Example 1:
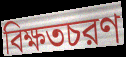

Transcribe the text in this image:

বিক্ষতচরণ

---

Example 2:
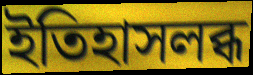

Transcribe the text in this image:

ইতিহাসলব্ধ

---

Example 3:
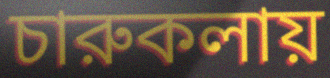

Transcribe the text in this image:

চারুকলায়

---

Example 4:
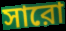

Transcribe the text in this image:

সারো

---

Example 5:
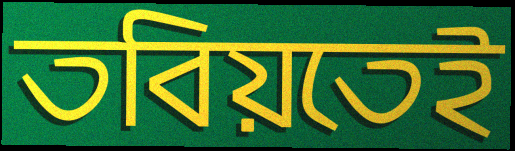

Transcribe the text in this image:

তবিয়তেই